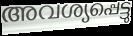
അവശ്യപ്പെട്ടു